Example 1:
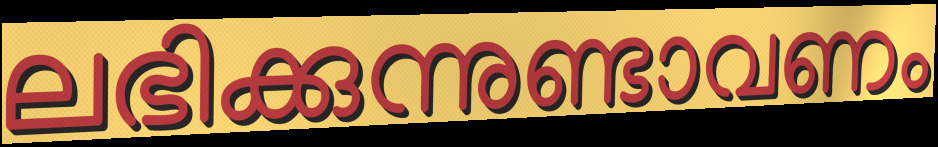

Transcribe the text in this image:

ലഭിക്കുന്നുണ്ടാവണം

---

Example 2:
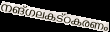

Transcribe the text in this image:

നങ്ഗലകട്ഠകരണം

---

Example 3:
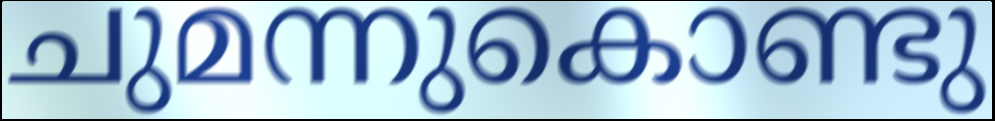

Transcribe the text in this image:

ചുമന്നുകൊണ്ടു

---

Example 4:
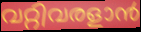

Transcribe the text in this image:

വറ്റിവരളാൻ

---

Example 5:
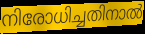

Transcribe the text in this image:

നിരോധിച്ചതിനാൽ